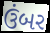
ઉંબર